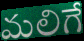
మలిగే